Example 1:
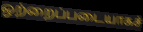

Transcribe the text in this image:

ஒற்றைப்படையாகச்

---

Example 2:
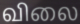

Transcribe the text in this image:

விலை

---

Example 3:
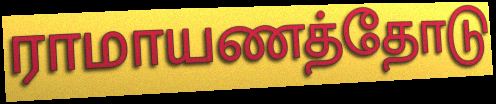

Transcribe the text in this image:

ராமாயணத்தோடு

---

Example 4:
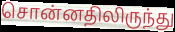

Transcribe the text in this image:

சொன்னதிலிருந்து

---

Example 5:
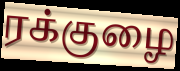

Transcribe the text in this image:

ரக்குழை